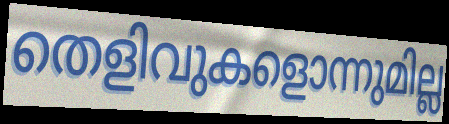
തെളിവുകളൊന്നുമില്ല